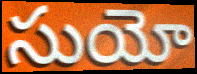
సుయో